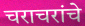
चराचरांचे